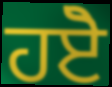
ਹਏੋ